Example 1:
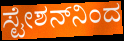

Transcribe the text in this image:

ಸ್ಟೇಶನ್‌ನಿಂದ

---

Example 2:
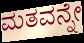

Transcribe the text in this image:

ಮತವನ್ನೇ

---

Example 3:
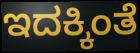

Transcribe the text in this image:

ಇದಕ್ಕಿಂತೆ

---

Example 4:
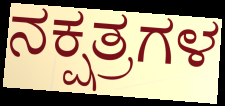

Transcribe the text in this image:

ನಕ್ಷತ್ರಗಳ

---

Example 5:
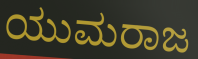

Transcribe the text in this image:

ಯುಮರಾಜ